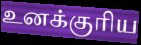
உனக்குரிய